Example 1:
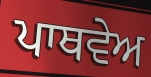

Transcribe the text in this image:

ਪਾਥਵੇਅ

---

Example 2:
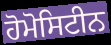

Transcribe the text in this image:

ਹੋਮੋਸਿਟੀਨ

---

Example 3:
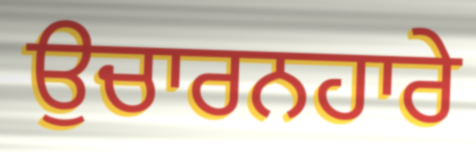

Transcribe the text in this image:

ਉਚਾਰਨਹਾਰੇ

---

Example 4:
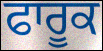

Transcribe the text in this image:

ਫਾਰੂਕ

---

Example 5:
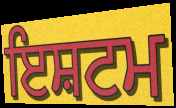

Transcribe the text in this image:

ਇਸ਼ਟਮ